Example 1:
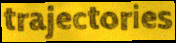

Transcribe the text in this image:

trajectories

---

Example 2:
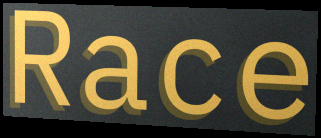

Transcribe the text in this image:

Race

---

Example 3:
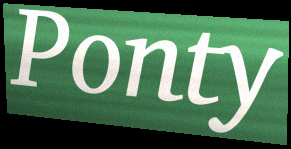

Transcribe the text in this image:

Ponty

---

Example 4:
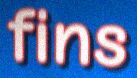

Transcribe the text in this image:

fins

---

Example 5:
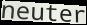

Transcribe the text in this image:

neuter